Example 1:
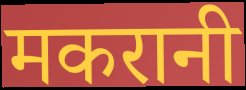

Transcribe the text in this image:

मकरानी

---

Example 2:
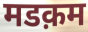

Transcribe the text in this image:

मडक़म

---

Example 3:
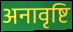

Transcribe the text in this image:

अनावृष्टि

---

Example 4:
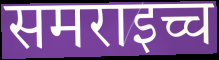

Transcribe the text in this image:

समराइच्च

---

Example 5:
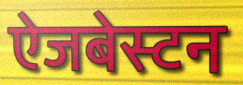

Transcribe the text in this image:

ऐजबेस्टन